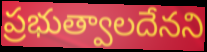
ప్రభుత్వాలదేనని